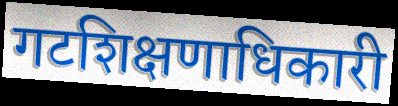
गटशिक्षणाधिकारी